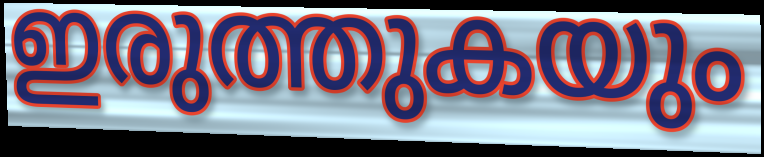
ഇരുത്തുകയും